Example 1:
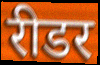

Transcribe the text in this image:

रीडर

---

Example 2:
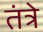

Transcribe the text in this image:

तंत्रे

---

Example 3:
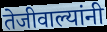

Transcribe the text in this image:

तेजीवाल्यांनी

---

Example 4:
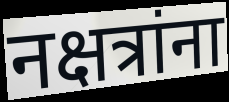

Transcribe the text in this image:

नक्षत्रांना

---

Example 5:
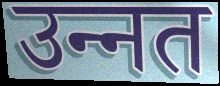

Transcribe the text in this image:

उन्‍नत